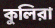
কুলিরা